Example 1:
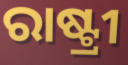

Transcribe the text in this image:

ରାଷ୍ଟ୍ରୀ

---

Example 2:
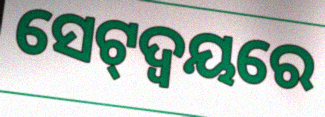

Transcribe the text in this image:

ସେଟ୍‌ଦ୍ଵୟରେ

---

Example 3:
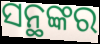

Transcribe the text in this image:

ସନ୍ଥଙ୍କର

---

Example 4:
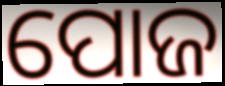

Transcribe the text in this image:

ପୋଜ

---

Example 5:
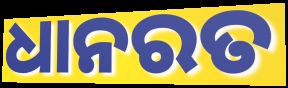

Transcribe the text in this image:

ଧାନରତ